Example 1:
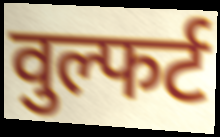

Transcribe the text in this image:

वुल्फर्ट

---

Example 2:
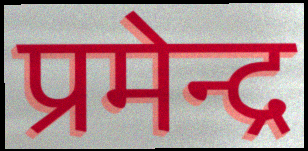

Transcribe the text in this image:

प्रमेन्द्र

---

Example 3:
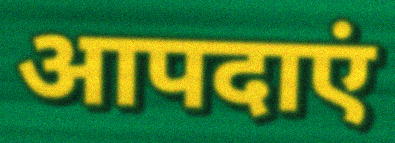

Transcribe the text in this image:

आपदाएं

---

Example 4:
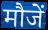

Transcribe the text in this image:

मौजें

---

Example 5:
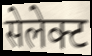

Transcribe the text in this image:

सेलेक्ट